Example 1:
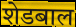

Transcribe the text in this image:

शेडबाल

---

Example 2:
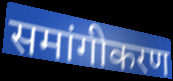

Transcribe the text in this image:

समांगीकरण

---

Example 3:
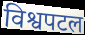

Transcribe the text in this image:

विश्वपटल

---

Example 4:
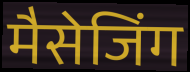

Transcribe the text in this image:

मैसेजिंग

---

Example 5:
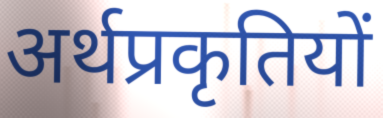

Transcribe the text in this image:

अर्थप्रकृतियों